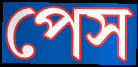
পেস